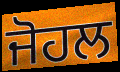
ਜੋਹਲ